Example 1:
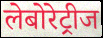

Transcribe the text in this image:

लेबोरेट्रीज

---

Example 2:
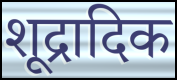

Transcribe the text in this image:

शूद्रादिक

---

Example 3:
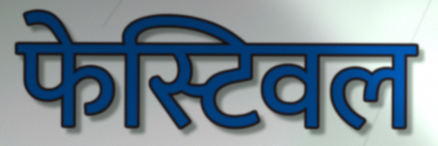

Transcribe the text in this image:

फेस्टिवल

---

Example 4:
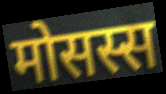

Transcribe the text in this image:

मोसस्स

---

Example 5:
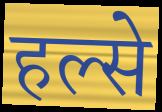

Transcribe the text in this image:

हल्से